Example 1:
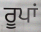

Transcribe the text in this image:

ਰੂਪਾਂ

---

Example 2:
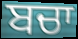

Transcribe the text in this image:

ਬਚਾ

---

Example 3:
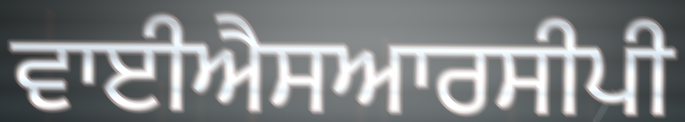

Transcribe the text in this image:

ਵਾਈਐਸਆਰਸੀਪੀ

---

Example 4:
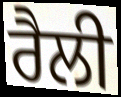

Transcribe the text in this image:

ਰੈਲੀ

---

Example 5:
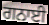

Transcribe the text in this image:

ਗਨਾਈ